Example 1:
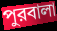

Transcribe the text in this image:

পুরবালা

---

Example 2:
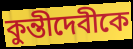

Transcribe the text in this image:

কুন্তীদেবীকে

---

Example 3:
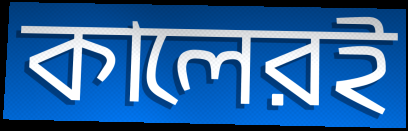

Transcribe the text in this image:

কালেরই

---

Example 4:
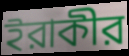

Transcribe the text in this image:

ইরাকীর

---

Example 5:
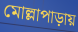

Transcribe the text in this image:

মোল্লাপাড়ায়